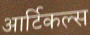
आर्टिकल्स